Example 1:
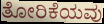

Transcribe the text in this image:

ತೋರಿಕೆಯವು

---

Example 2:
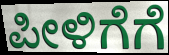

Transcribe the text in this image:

ಪೀಳಿಗೆಗೆ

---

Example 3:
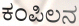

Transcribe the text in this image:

ಕಂಪಿಲನ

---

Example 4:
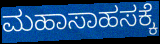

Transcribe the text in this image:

ಮಹಾಸಾಹಸಕ್ಕೆ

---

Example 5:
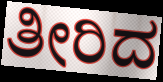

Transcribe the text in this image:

ತೀರಿದ